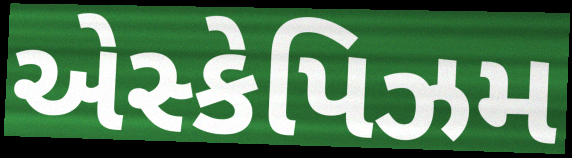
એસ્કેપિઝમ